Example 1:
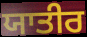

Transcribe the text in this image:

ਯਾਤੀਰ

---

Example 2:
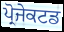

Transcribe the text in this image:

ਪ੍ਰੋਜੇਕਟਡ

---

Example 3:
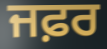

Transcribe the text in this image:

ਜਫ਼ਰ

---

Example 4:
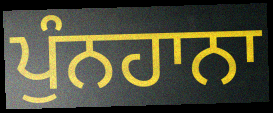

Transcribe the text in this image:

ਪੁੰਨਹਾਨਾ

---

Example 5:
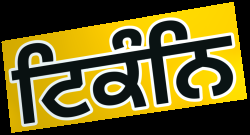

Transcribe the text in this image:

ਟਿਕੰਨਿ